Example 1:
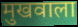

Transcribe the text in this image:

मुखवाला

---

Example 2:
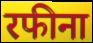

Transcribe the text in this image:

रफीना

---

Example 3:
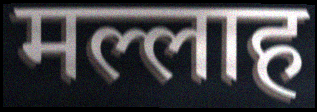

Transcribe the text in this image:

मल्‍लाह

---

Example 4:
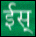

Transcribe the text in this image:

ईस्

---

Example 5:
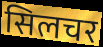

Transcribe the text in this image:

सिलचर